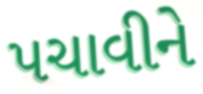
પચાવીને